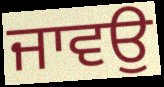
ਜਾਵਉ